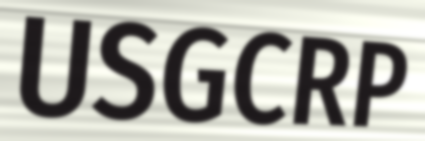
USGCRP